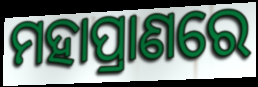
ମହାପ୍ରାଣରେ